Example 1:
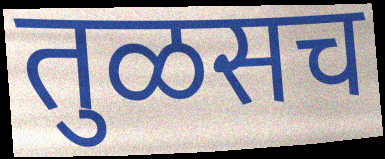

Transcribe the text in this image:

तुळसच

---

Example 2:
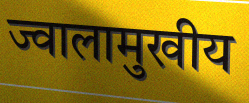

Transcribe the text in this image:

ज्वालामुखीय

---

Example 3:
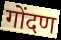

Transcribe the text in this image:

गोंदण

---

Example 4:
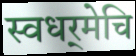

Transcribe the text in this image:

स्वधर्मेचि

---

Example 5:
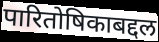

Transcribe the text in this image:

पारितोषिकाबद्दल